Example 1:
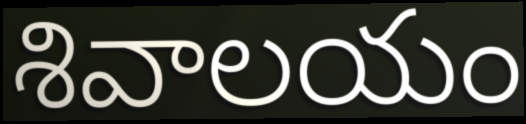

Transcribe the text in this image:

శివాలయం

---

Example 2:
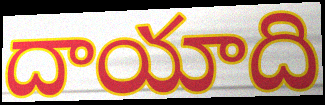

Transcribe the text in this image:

దాయాది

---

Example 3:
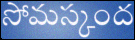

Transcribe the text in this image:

సోమస్కంద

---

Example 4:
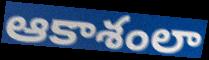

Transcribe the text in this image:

ఆకాశంలా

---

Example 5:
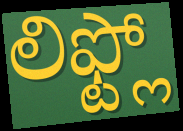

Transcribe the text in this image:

లిఫ్ట్లో